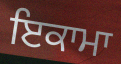
ਇਕਾਮਾ